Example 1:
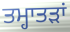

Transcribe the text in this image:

ਤਮ੍ਹਾਤੜਾਂ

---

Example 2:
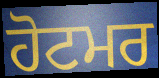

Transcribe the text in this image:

ਹੋਟਮਰ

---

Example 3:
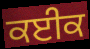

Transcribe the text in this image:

ਕਈਕ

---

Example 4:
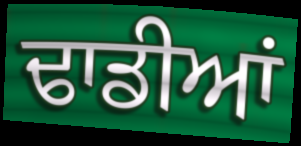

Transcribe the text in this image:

ਢਾਡੀਆਂ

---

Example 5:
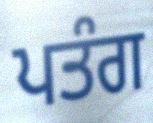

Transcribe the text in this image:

ਪਤੰਗ